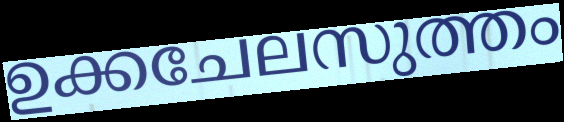
ഉക്കചേലസുത്തം